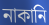
নাকানি